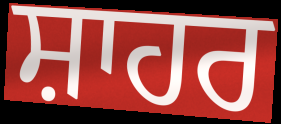
ਸ਼ਾਹਰ